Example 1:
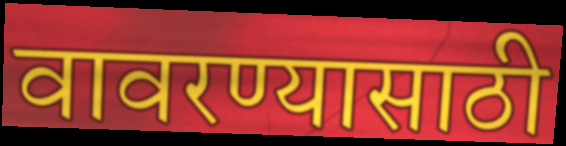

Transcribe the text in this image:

वावरण्यासाठी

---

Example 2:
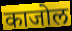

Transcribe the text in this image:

काजोल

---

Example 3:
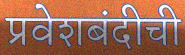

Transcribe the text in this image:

प्रवेशबंदीची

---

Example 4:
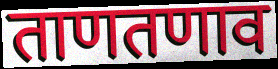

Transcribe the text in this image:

ताणतणाव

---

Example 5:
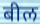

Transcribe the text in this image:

बील